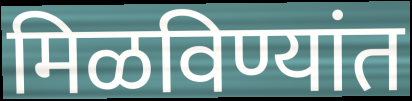
मिळविण्यांत